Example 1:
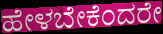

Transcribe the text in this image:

ಹೇಳಬೇಕೆಂದರೇ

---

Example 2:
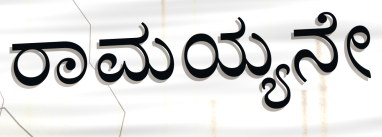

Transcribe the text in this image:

ರಾಮಯ್ಯನೇ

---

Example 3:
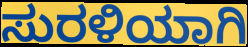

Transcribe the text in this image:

ಸುರಳಿಯಾಗಿ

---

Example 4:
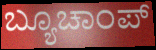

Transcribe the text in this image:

ಬ್ಯೂಚಾಂಪ್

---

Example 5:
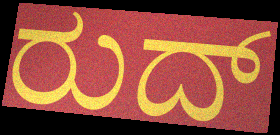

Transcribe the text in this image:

ರುದ್